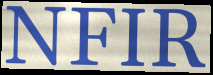
NFIR